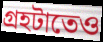
গ্রহটাতেও